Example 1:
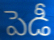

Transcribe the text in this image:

పెడీ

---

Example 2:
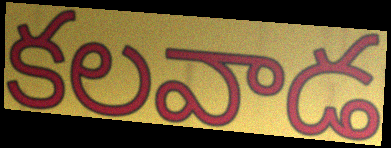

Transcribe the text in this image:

కలవాడ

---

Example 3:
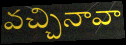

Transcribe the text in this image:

వచ్చినావా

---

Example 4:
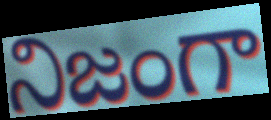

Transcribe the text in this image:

నిజంగా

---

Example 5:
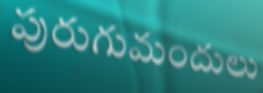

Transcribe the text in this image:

పురుగుమందులు